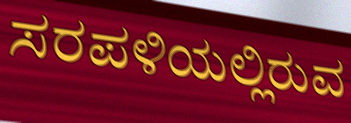
ಸರಪಳಿಯಲ್ಲಿರುವ